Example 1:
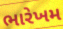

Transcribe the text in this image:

ભારેખમ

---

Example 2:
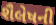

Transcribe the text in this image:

શૈલેષની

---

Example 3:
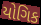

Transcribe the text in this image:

યોગિક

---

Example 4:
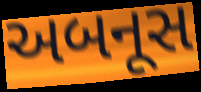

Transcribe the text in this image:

અબનૂસ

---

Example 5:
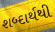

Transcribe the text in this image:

શબ્દાર્થથી